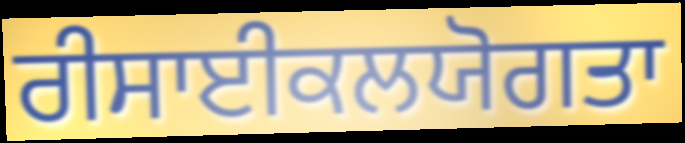
ਰੀਸਾਈਕਲਯੋਗਤਾ